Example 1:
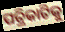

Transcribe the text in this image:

ପତ୍ରିକାଟିକୁ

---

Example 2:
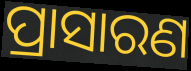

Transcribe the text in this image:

ପ୍ରାସାରଣ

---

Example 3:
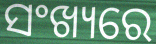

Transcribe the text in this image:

ସଂଖ୍ୟରେ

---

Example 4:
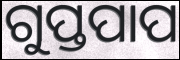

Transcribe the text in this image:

ଗୁପ୍ତପାପ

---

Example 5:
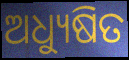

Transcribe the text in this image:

ଅଧ୍ୟୁଷିତ